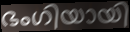
ഭംഗിയായി